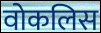
वोकलिस